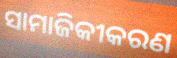
ସାମାଜିକୀକରଣ